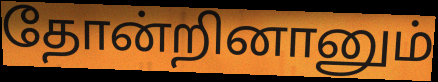
தோன்றினானும்